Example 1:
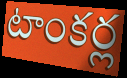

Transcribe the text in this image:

టాంకర్ల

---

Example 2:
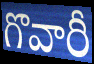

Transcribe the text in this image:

గొవారీ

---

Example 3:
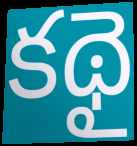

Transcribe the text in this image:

కథై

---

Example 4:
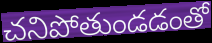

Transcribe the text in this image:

చనిపోతుండడంతో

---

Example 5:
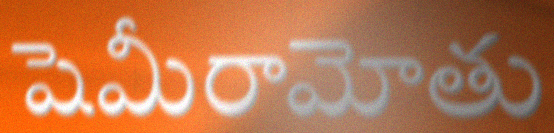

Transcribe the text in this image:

షెమీరామోతు